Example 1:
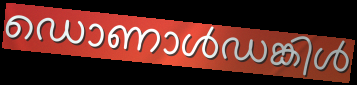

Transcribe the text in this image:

ഡൊണാൾഡങ്കിൾ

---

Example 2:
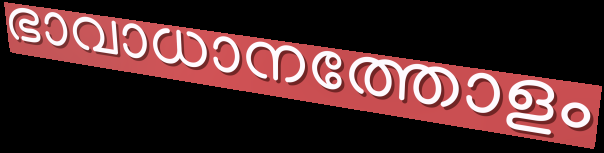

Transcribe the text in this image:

ഭാവാധാനത്തോളം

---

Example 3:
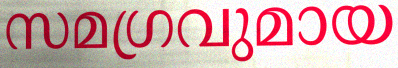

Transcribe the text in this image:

സമഗ്രവുമായ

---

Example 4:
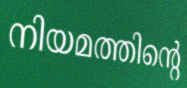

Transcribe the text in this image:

നിയമത്തിന്റെ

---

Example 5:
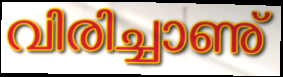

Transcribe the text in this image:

വിരിച്ചാണു്